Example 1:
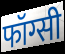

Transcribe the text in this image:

फॉग्सी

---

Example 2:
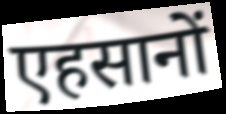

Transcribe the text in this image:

एहसानों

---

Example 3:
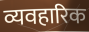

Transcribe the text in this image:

व्यवहारिक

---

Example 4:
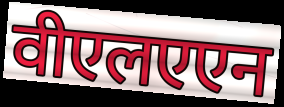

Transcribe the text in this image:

वीएलएएन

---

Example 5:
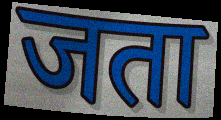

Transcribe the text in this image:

जता